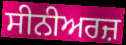
ਸੀਨੀਅਰਜ਼